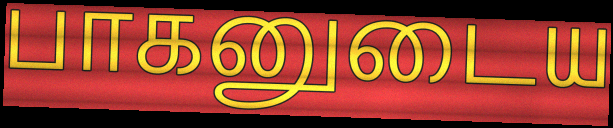
பாகனுடைய